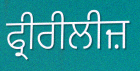
ਫ੍ਰੀਰੀਲੀਜ਼